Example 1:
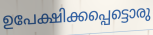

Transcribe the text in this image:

ഉപേക്ഷിക്കപ്പെട്ടൊരു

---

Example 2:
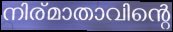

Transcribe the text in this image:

നിര്മാതാവിന്റെ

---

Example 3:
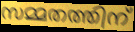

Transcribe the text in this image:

സമ്മതത്തിന്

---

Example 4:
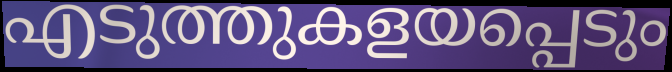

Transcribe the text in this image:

എടുത്തുകളയപ്പെടും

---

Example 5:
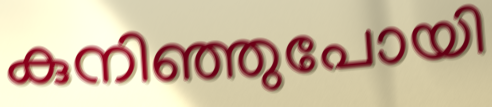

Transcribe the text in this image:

കുനിഞ്ഞുപോയി